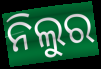
ନିଲୁର